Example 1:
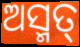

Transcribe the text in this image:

ଅସ୍ମତ୍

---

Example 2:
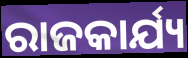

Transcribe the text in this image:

ରାଜକାର୍ଯ୍ୟ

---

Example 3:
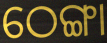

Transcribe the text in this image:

ଠେଙ୍ଗା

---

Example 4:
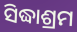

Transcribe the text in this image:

ସିଦ୍ଧାଶ୍ରମ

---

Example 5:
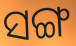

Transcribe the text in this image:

ସଙ୍ଗ